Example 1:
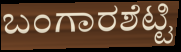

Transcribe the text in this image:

ಬಂಗಾರಶೆಟ್ಟಿ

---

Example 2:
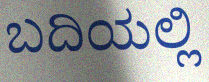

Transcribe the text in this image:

ಬದಿಯಲ್ಲಿ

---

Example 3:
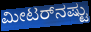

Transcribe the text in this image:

ಮೀಟರ್‌ನಷ್ಟು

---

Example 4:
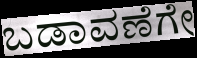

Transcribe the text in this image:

ಬಡಾವಣೆಗೇ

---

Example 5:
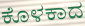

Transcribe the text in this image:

ಕೊಳಕಾದ